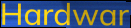
Hardwar